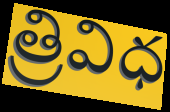
త్రివిధ